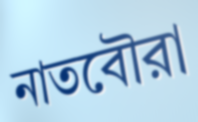
নাতবৌরা